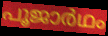
പൂജാർഥം